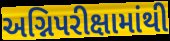
અગ્નિપરીક્ષામાંથી